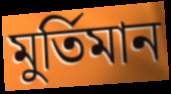
মুর্তিমান